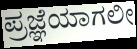
ಪ್ರಜ್ಞೆಯಾಗಲೀ